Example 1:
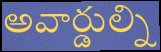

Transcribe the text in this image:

అవార్డుల్ని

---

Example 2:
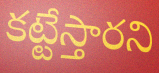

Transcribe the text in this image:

కట్టేస్తారని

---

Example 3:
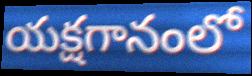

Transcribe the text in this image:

యక్షగానంలో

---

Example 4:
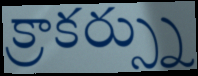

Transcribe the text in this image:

క్రాకర్స్ను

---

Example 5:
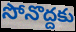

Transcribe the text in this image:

సోనొద్దకు